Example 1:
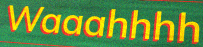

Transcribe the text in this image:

Waaahhhh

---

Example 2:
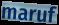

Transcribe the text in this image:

maruf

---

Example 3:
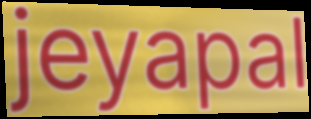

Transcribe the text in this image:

jeyapal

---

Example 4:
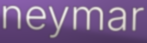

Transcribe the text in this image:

neymar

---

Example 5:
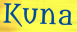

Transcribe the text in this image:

Kuna